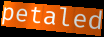
petaled